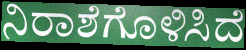
ನಿರಾಶೆಗೊಳಿಸಿದೆ